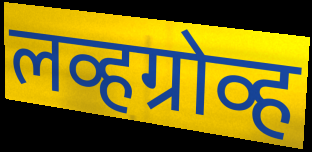
लव्हग्रोव्ह